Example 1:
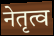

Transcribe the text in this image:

नेतृत्‍व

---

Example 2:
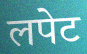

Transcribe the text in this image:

लपेट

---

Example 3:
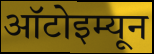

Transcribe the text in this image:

ऑटोइम्यून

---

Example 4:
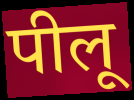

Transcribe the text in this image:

पीलू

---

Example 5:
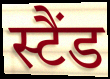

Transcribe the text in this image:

स्टैंड